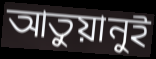
আতুয়ানুই